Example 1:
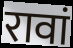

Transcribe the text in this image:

रावां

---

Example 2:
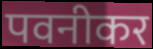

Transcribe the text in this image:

पवनीकर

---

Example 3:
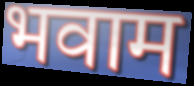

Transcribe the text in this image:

भवाम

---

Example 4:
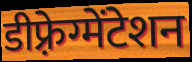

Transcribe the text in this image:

डीफ़्रेग्मेंटेशन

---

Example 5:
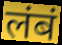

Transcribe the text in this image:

लंबं